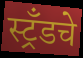
स्ट्रँडचे